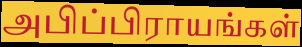
அபிப்பிராயங்கள்